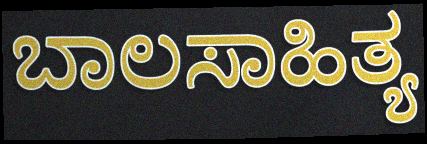
ಬಾಲಸಾಹಿತ್ಯ